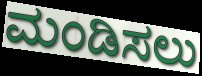
ಮಂಡಿಸಲು